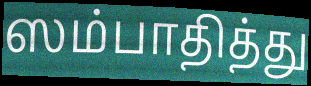
ஸம்பாதித்து